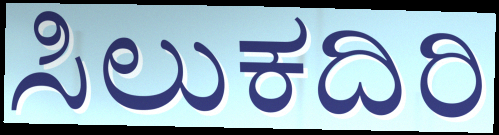
ಸಿಲುಕದಿರಿ